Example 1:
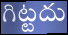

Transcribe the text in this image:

గిట్టదు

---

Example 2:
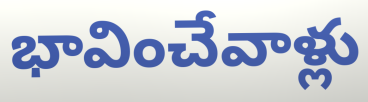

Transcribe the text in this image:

భావించేవాళ్లు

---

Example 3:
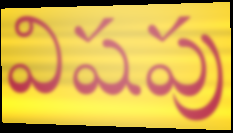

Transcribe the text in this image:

విషపు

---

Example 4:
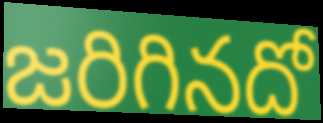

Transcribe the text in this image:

జరిగినదో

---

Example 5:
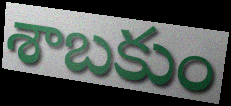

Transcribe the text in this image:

శాబకుం